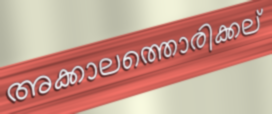
അക്കാലത്തൊരിക്കല്